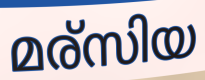
മര്സിയ